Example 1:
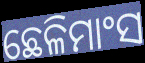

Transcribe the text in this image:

ଛେଳିମାଂସ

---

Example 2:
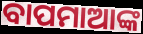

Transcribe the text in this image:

ବାପମାଆଙ୍କ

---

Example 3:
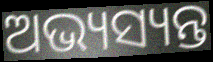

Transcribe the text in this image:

ଅଭ୍ୟସ୍ୟନ୍ତ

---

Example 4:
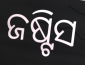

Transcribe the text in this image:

ଜଷ୍ଟିସ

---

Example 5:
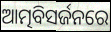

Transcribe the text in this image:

ଆତ୍ମବିସର୍ଜନରେ